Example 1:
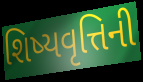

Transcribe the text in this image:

શિષ્યવૃત્તિની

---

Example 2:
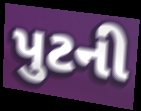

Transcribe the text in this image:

પુટની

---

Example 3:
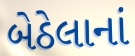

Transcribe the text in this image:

બેઠેલાનાં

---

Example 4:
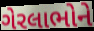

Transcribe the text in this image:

ગેરલાભોને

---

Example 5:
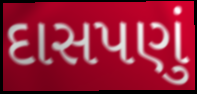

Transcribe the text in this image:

દાસપણું